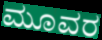
ಮೂವರ